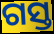
ଗସ୍ତ